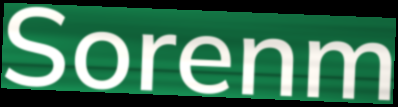
Sorenm